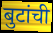
बुटांची